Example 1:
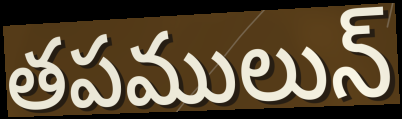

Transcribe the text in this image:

తపములున్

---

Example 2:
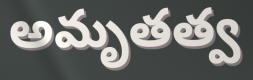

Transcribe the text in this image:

అమృతత్వ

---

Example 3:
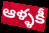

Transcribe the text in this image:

ఆళ్ళకీ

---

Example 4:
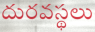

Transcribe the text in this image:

దురవస్థలు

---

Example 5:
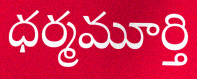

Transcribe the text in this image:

ధర్మమూర్తి